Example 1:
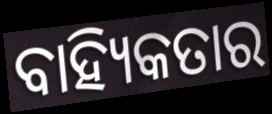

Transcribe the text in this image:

ବାହ୍ୟିକତାର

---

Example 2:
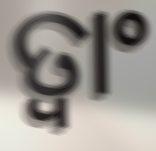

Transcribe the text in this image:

ତ୍ଵାଂ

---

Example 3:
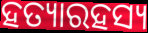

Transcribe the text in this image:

ହତ୍ୟାରହସ୍ୟ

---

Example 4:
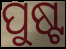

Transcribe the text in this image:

ପୁଷ୍ଟ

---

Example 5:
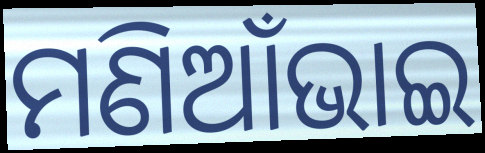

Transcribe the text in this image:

ମଣିଆଁଭାଇ